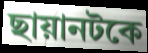
ছায়ানটকে